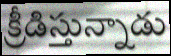
క్రీడిస్తున్నాడు